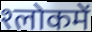
श्लोकमें